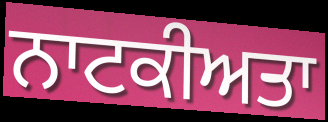
ਨਾਟਕੀਅਤਾ